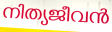
നിത്യജീവൻ